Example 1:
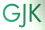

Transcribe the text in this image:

GJK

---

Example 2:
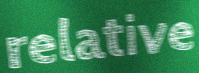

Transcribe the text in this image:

relative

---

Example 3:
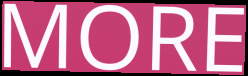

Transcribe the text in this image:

MORE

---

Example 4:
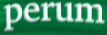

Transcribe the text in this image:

perum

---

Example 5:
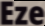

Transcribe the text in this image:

Eze